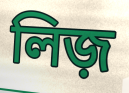
লিজ়